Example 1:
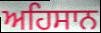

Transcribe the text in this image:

ਅਹਿਸਾਨ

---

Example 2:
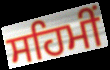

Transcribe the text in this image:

ਸਹਿਮੀਂ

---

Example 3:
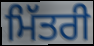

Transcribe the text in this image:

ਮਿੱਤਰੀ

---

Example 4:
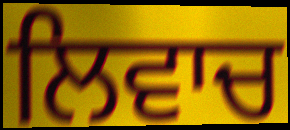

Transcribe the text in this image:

ਲਿਵਾਚ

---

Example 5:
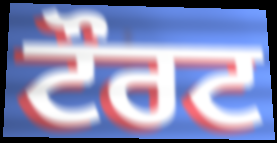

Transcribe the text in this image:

ਟੌਰਟ